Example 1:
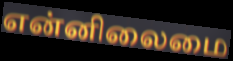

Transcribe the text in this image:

என்னிலைமை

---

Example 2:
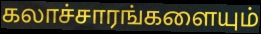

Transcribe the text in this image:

கலாச்சாரங்களையும்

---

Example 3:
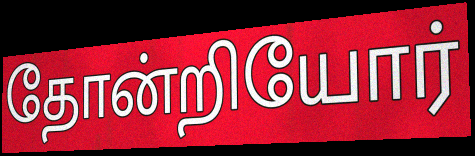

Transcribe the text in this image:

தோன்றியோர்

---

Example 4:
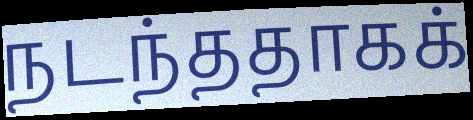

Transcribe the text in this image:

நடந்ததாகக்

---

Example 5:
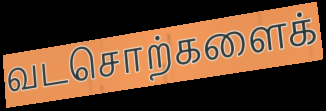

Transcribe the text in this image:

வடசொற்களைக்